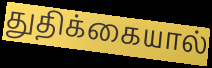
துதிக்கையால்